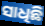
ସାଧିଛି